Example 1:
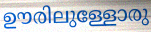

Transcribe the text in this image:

ഊരിലുള്ളോരു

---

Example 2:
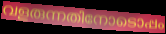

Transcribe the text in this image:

വളരുന്നതിനോടൊപ്പം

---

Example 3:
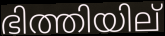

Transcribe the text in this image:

ഭിത്തിയില്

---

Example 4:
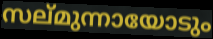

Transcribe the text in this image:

സല്മുന്നായോടും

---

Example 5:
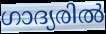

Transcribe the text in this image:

ഗാദ്യരിൽ